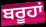
ਬਰੂਹਾਂ